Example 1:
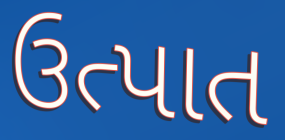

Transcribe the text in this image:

ઉત્પાત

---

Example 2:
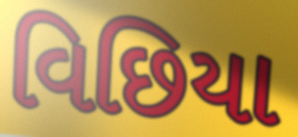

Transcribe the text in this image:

વિછિયા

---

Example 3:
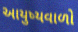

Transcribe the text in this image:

આયુષ્યવાળો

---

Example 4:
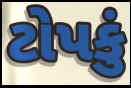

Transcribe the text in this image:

ટોપકું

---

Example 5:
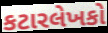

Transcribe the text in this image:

કટારલેખકો